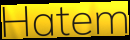
Hatem